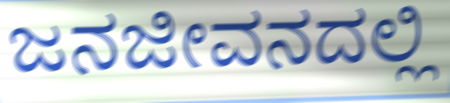
ಜನಜೀವನದಲ್ಲಿ